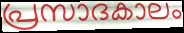
പ്രസാദകാലം